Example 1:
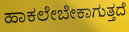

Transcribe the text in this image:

ಹಾಕಲೇಬೇಕಾಗುತ್ತದೆ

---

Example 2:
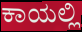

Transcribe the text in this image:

ಕಾಯಲ್ಲಿ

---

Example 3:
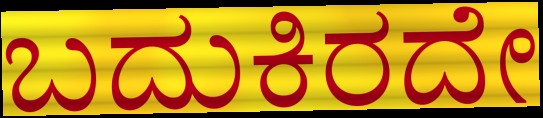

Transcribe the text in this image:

ಬದುಕಿರದೇ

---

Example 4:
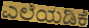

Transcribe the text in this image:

ಎಲೆಯಡಿಕೆ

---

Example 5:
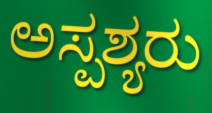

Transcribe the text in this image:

ಅಸ್ಪಶ್ಯರು